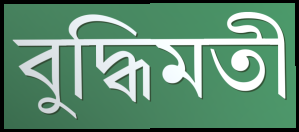
বুদ্ধিমতী